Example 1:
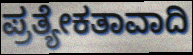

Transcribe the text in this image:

ಪ್ರತ್ಯೇಕತಾವಾದಿ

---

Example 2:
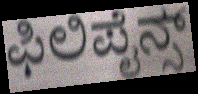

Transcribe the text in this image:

ಫಿಲಿಪೈನ್ಸ್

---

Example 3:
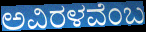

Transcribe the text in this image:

ಅವಿರಳವೆಂಬ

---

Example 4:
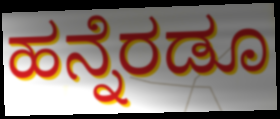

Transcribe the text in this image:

ಹನ್ನೆರಡೂ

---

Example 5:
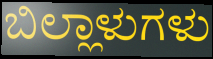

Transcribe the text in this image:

ಬಿಲ್ಲಾಳುಗಳು